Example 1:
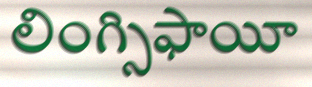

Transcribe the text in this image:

లింగ్సిఫాయీ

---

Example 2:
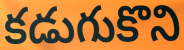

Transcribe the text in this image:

కడుగుకొని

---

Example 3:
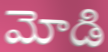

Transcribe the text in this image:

మోడి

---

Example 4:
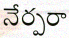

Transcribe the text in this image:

నేర్పరా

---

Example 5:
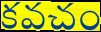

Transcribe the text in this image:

కవచం